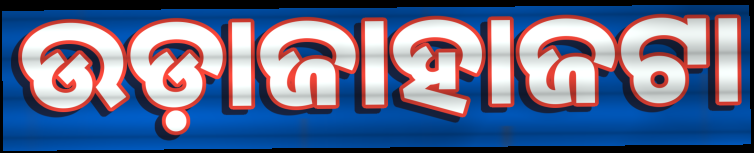
ଉଡ଼ାଜାହାଜଟା